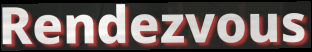
Rendezvous